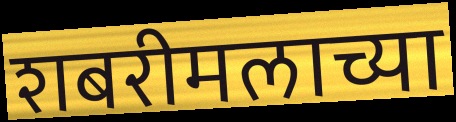
शबरीमलाच्या